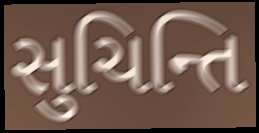
સુચિન્તિ